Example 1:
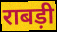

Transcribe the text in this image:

राबड़ी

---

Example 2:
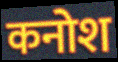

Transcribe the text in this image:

कनोश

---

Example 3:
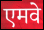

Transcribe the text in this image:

एमवे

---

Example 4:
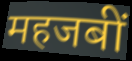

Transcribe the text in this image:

महजबीं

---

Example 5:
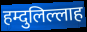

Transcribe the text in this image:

हम्दुलिल्लाह